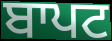
ਬਾਪਟ